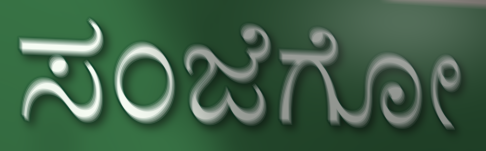
ಸಂಜೆಗೋ